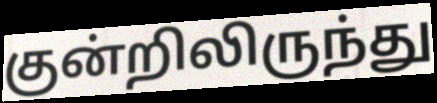
குன்றிலிருந்து